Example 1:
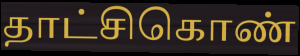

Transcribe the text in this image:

தாட்சிகொண்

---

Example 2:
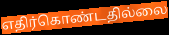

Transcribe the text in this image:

எதிர்கொண்டதில்லை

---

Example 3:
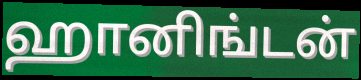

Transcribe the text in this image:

ஹானிங்டன்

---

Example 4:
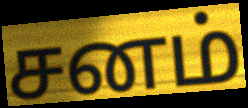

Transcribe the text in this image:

சனம்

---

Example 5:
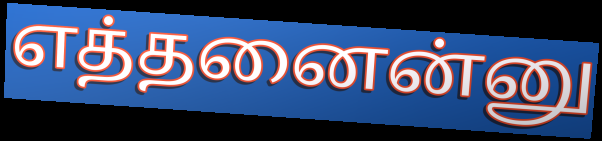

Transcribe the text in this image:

எத்தனைன்னு